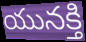
యునక్తి